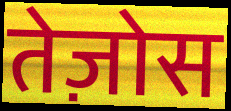
तेज़ोस